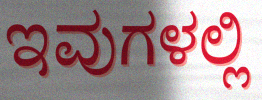
ಇವುಗಳಲ್ಲಿ